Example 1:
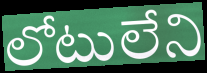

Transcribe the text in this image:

లోటులేని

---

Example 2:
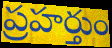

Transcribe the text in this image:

ప్రహర్తుం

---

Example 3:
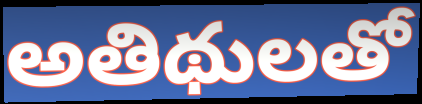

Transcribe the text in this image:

అతిథులతో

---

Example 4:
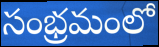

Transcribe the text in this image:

సంభ్రమంలో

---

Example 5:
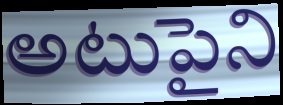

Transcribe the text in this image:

అటుపైని